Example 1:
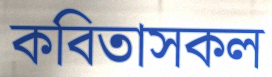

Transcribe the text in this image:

কবিতাসকল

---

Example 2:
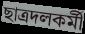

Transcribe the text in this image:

ছাত্রদলকর্মী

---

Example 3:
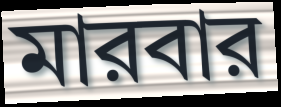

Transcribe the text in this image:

মারবার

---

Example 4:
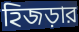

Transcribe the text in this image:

হিজড়ার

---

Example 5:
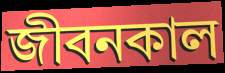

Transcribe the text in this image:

জীবনকাল